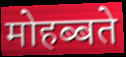
मोहब्बते